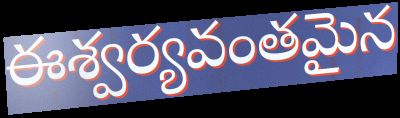
ఈశ్వర్యవంతమైన